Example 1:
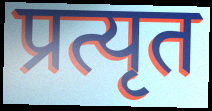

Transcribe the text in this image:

प्रत्यृत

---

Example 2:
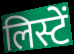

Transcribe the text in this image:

लिस्टें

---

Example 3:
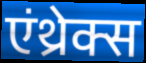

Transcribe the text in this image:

एंथ्रेक्स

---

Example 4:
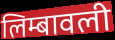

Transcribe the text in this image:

लिम्बावली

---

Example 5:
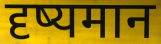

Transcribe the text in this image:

दृष्यमान